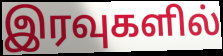
இரவுகளில்